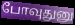
போவுதுனு